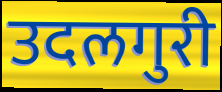
उदलगुरी